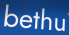
bethu